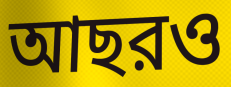
আছরও